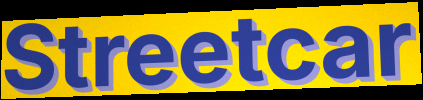
Streetcar